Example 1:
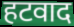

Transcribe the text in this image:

हटवाद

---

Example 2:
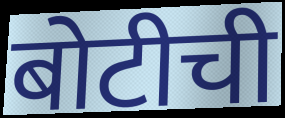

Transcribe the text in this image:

बोटीची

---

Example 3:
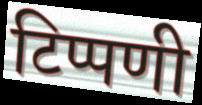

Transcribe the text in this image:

टिप्पणी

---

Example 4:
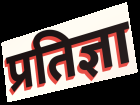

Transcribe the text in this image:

प्रतिज्ञा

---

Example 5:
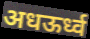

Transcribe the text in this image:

अधऊर्ध्व